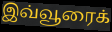
இவ்வூரைக்